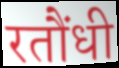
रतौंधी